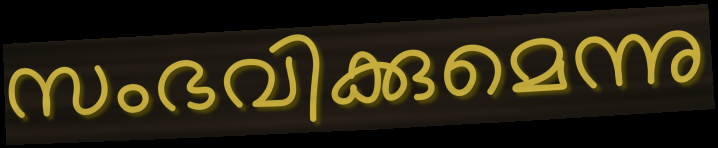
സംഭവിക്കുമെന്നു